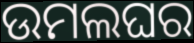
ଉମଲଘର